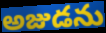
అజుడను